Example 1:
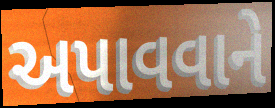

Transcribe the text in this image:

અપાવવાને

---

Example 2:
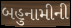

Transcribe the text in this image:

બહુનામીની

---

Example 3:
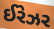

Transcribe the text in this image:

ઈરેઝર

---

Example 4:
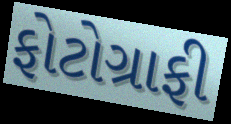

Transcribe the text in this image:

ફોટોગ્રાફી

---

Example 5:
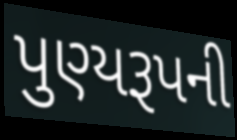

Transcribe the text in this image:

પુણ્યરૂપની